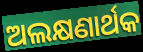
ଅଲକ୍ଷଣାର୍ଥକ